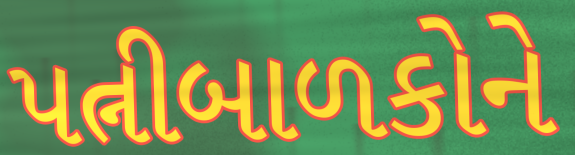
પત્નીબાળકોને